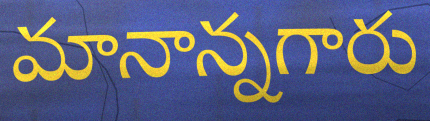
మానాన్నగారు